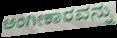
ಅಂಗೀಕಾರವನ್ನು